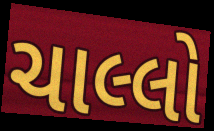
ચાલ્લો